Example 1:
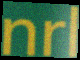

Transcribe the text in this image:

nrl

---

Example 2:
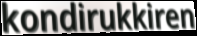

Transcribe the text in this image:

kondirukkiren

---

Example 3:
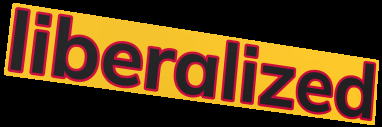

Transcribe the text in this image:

liberalized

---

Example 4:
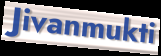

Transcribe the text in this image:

Jivanmukti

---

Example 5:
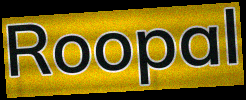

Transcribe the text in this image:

Roopal